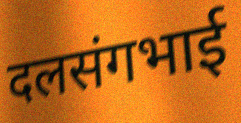
दलसंगभाई